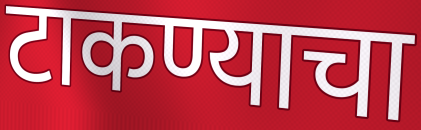
टाकण्याचा